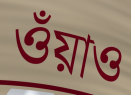
ওঁয়াও